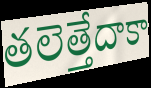
తలెత్తేదాకా